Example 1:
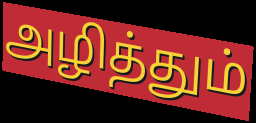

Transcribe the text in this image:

அழித்தும்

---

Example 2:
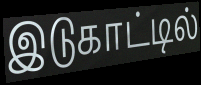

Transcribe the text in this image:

இடுகாட்டில்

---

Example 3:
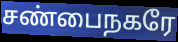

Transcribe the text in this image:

சண்பைநகரே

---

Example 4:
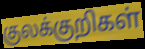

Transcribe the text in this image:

குலக்குறிகள்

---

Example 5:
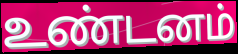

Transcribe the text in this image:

உண்டனம்